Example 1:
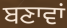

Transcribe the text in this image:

ਬਣਾਵਾਂ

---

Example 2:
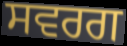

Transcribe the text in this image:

ਸਵਰਗ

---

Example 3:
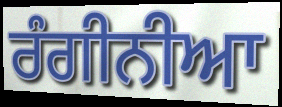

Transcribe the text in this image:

ਰੰਗੀਨੀਆ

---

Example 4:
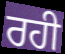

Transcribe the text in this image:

ਰਹੀ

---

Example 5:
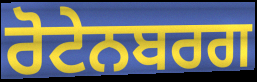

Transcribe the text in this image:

ਰੋਟੇਨਬਰਗ